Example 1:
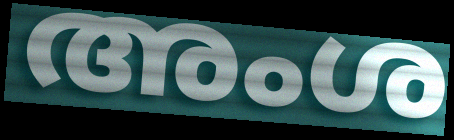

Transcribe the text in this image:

അംശ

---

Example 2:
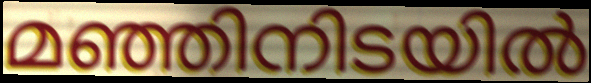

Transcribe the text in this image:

മഞ്ഞിനിടയിൽ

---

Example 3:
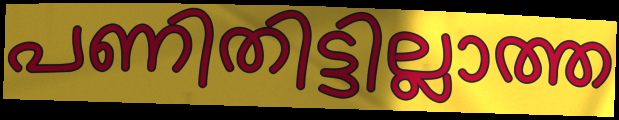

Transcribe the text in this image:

പണിതിട്ടില്ലാത്ത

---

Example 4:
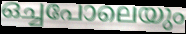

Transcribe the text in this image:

ഒച്ചപോലെയും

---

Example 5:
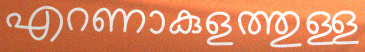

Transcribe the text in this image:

എറണാകുളത്തുള്ള